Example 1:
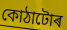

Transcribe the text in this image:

কোঠাটোৰ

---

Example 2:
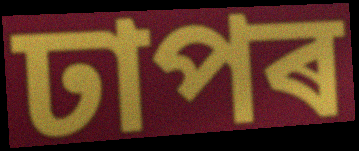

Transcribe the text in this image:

ঢাপৰ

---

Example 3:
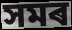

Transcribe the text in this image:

সমৰ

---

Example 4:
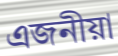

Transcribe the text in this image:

এজনীয়া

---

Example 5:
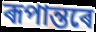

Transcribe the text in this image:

ৰূপান্তৰে